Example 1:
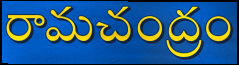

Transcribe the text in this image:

రామచంద్రం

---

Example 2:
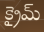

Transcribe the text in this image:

క్రైమ్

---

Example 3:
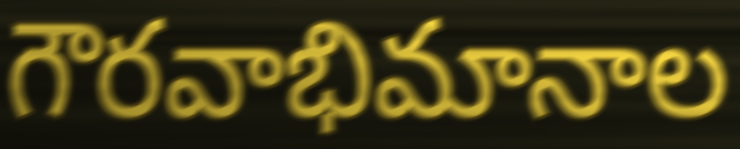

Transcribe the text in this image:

గౌరవాభిమానాల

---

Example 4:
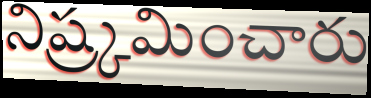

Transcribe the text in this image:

నిష్ర్కమించారు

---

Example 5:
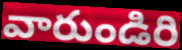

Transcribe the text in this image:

వారుండిరి